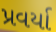
પ્રવર્યા